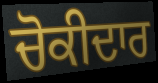
ਚੋਕੀਦਾਰ